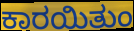
ಕಾರಯಿತುಂ